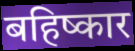
बहिष्‍कार